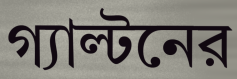
গ্যাল্টনের